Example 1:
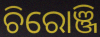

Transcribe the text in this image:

ଚିରୋଞ୍ଜି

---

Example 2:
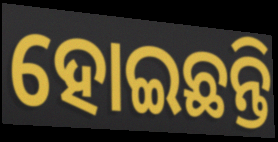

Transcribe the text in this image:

ହୋଇଛନ୍ତି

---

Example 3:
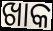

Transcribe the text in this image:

ଖାକ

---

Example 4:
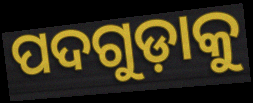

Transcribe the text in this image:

ପଦଗୁଡ଼ାକୁ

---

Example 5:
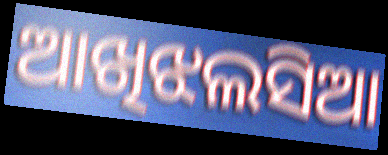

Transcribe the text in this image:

ଆଖିଝଲସିଆ